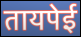
तायपेई